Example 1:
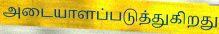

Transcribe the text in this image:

அடையாளப்படுத்துகிறது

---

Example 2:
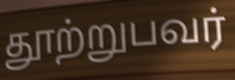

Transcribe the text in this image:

தூற்றுபவர்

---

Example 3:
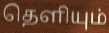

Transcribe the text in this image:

தெளியும்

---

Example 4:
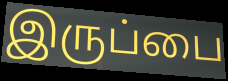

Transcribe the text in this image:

இருப்பை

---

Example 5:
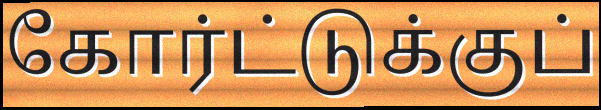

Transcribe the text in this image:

கோர்ட்டுக்குப்